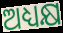
ଅଧ୍ୟକ୍ଷ